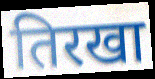
तिरखा